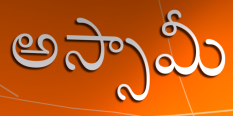
అస్సామీ